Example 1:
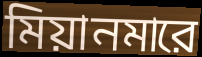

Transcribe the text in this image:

মিয়ানমারে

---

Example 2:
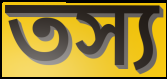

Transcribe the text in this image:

তস্য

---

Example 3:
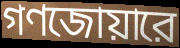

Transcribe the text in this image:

গণজোয়ারে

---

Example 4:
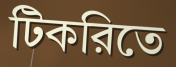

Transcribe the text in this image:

টিকরিতে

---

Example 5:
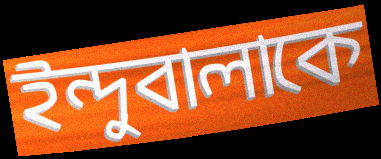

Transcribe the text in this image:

ইন্দুবালাকে